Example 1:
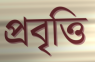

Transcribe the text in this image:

প্ৰবৃত্তি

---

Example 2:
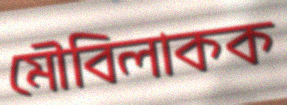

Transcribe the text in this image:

মৌবিলাকক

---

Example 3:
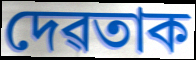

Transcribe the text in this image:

দেৱতাক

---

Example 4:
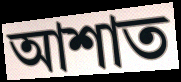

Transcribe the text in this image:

আশাত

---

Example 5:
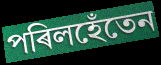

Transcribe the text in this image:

পৰিলহেঁতেন